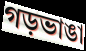
গড়ভাঙা